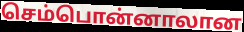
செம்பொன்னாலான